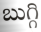
బుగ్గి